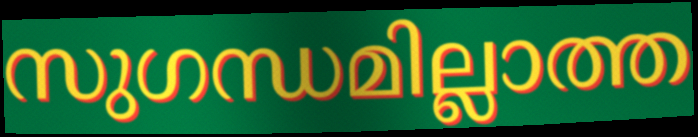
സുഗന്ധമില്ലാത്ത